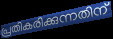
പ്രതികരിക്കുന്നതിന്